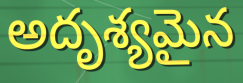
అదృశ్యమైన